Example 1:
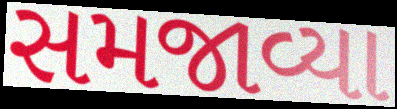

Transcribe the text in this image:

સમજાવ્યા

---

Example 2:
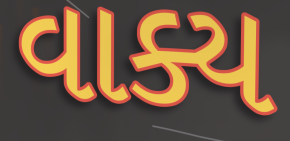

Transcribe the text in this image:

વાક્ય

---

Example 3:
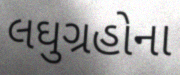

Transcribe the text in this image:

લઘુગ્રહોના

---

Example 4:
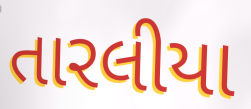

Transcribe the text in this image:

તારલીયા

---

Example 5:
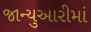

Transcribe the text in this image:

જાન્યુઆરીમાં